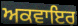
ਅਕਵਾਇਰ